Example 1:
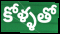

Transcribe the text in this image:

కోళ్ళతో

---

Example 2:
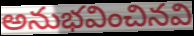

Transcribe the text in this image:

అనుభవించినవి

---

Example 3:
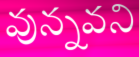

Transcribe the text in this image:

వున్నవని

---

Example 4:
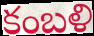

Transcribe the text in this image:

కంబళి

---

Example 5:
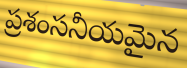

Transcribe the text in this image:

ప్రశంసనీయమైన